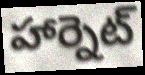
హార్నెట్